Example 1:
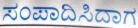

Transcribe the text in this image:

ಸಂಪಾದಿಸಿದಾಗ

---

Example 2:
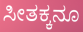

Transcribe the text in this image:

ಸೀತಕ್ಕನೂ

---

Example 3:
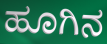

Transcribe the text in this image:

ಹೂಗಿನ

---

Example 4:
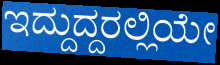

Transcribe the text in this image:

ಇದ್ದುದ್ದರಲ್ಲಿಯೇ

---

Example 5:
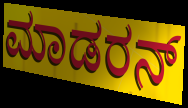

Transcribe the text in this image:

ಮಾಡರನ್